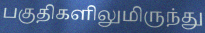
பகுதிகளிலுமிருந்து